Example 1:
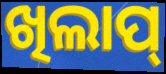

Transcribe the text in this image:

ଖିଲାପ୍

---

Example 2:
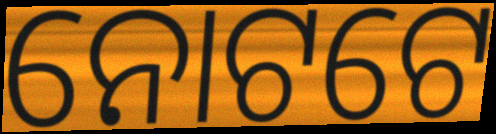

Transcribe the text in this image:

ନୋଟଟେ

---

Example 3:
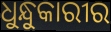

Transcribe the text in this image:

ଧୁନ୍ଧୁକାରୀର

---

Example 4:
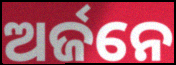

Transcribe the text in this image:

ଅର୍ଜନେ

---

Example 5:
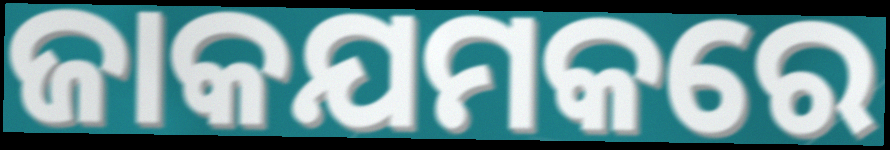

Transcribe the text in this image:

ଜାକଯମକରେ